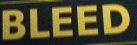
BLEED